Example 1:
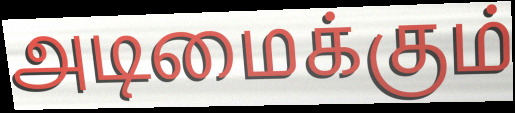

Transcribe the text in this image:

அடிமைக்கும்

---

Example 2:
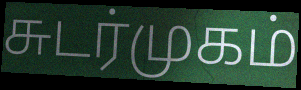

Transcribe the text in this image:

சுடர்முகம்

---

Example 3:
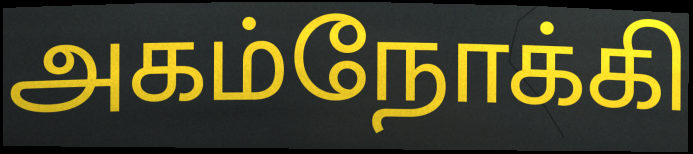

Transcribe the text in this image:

அகம்நோக்கி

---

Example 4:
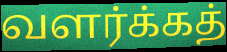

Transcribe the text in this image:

வளர்க்கத்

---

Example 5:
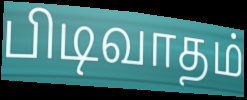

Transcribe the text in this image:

பிடிவாதம்